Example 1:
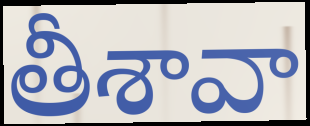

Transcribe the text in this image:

తీశావా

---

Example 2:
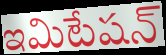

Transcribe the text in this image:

ఇమిటేషన్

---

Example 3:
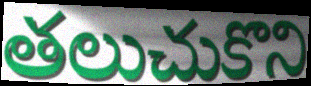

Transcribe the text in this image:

తలుచుకొని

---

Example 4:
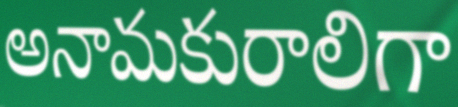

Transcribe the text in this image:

అనామకురాలిగా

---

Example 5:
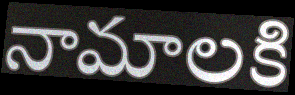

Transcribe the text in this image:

నామాలకి